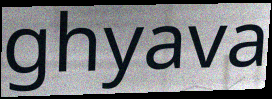
ghyava